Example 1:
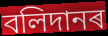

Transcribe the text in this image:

বলিদানৰ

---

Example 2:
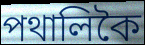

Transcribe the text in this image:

পথালিকৈ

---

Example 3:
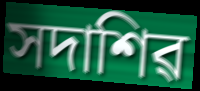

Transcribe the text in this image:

সদাশিৱ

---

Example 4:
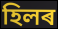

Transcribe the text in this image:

হিলৰ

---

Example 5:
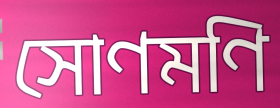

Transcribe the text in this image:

সোণমণি